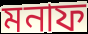
মনাফ